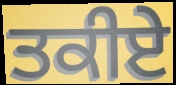
ਤਕੀਏ